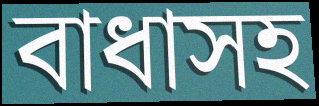
বাধাসহ